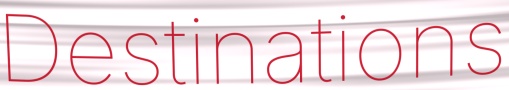
Destinations